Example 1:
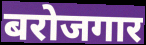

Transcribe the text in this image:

बरोजगार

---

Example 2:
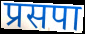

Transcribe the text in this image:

प्रसपा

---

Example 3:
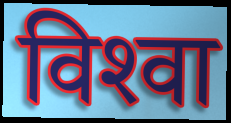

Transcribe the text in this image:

विश्‍वा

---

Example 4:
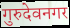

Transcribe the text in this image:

गुरुदेवनगर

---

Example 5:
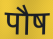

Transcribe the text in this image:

पौष